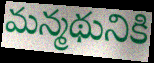
మన్మథునికి